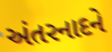
અંતરનાદને